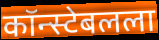
कॉन्स्टेबलला